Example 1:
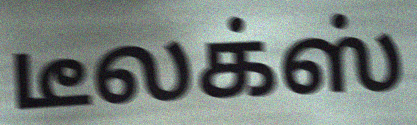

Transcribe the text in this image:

டீலக்ஸ்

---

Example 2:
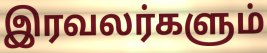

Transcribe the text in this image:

இரவலர்களும்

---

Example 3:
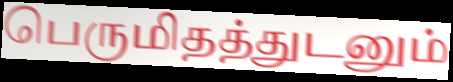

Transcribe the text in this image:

பெருமிதத்துடனும்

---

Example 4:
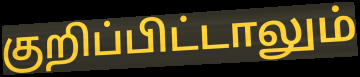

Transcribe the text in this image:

குறிப்பிட்டாலும்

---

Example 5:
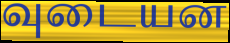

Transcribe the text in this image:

வுடையன